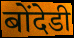
बोंदेडी